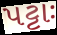
પટ્ટાઃ